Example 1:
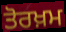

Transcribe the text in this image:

ਤੋਰਖ਼ਮ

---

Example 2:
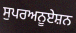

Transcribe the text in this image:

ਸੁਪਰਅਨੂਏਸ਼ਨ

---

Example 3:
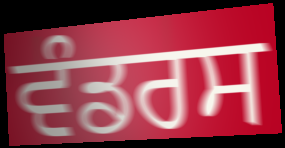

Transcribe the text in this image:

ਵੰਡਰਸ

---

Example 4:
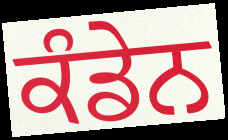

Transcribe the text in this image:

ਕੰਡੇਨ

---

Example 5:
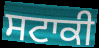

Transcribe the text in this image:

ਸਟਾਕੀ